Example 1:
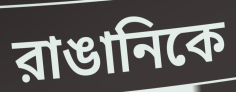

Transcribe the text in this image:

রাঙানিকে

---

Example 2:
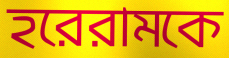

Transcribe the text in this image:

হরেরামকে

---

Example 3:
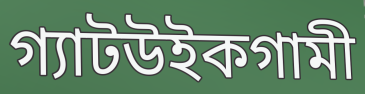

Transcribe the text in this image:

গ্যাটউইকগামী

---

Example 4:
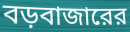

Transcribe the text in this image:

বড়বাজারের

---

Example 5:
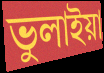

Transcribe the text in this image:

ভুলাইয়া